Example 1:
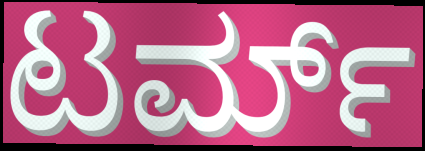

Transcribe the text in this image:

ಟರ್ಮ್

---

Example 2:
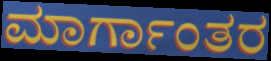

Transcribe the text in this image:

ಮಾರ್ಗಾಂತರ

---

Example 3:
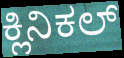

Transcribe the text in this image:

ಕ್ಲಿನಿಕಲ್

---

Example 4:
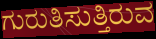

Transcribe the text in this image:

ಗುರುತಿಸುತ್ತಿರುವ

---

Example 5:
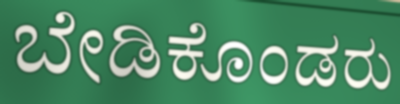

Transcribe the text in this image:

ಬೇಡಿಕೊಂಡರು